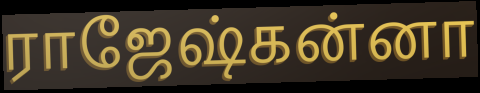
ராஜேஷ்கன்னா